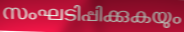
സംഘടിപ്പിക്കുകയും